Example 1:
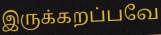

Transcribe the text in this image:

இருக்கறப்பவே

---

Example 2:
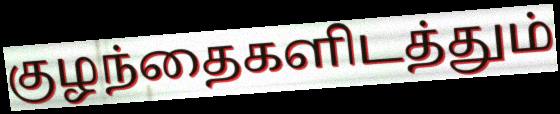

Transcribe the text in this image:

குழந்தைகளிடத்தும்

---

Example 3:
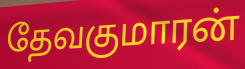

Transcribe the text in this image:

தேவகுமாரன்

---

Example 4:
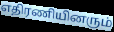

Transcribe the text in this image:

எதிரணியினரும்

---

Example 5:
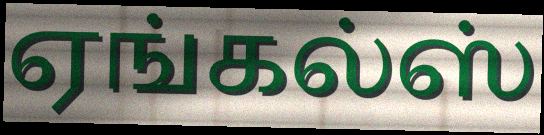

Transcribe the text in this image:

ஏங்கல்ஸ்